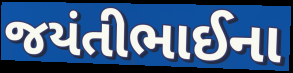
જયંતીભાઈના